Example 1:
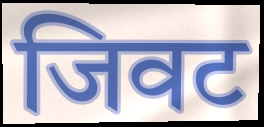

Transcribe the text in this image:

जिवट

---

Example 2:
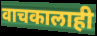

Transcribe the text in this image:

वाचकालाही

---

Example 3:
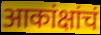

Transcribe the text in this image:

आकांक्षांचं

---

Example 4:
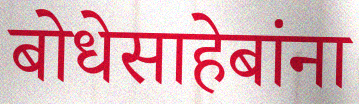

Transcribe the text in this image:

बोधेसाहेबांना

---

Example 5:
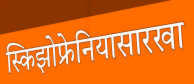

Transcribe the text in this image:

स्किझोफ्रेनियासारखा